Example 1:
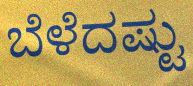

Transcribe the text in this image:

ಬೆಳೆದಷ್ಟು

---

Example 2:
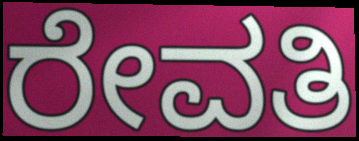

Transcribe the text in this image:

ರೇವತಿ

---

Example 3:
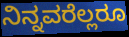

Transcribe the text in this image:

ನಿನ್ನವರೆಲ್ಲರೂ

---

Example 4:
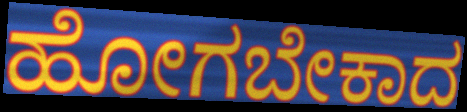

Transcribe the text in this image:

ಹೋಗಬೇಕಾದ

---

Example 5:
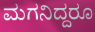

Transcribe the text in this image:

ಮಗನಿದ್ದರೂ